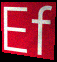
Ef